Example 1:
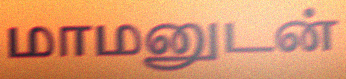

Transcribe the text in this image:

மாமனுடன்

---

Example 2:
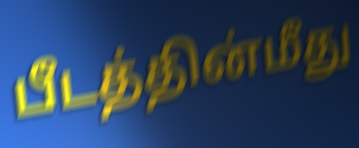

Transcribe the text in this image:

பீடத்தின்மீது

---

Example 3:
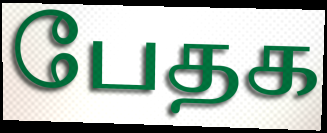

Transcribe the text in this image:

பேதக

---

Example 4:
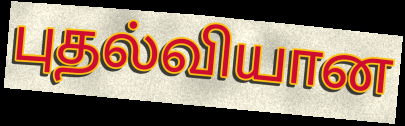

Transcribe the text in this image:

புதல்வியான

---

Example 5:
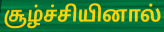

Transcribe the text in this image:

சூழ்ச்சியினால்